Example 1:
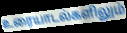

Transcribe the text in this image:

உரையாடல்களிலும்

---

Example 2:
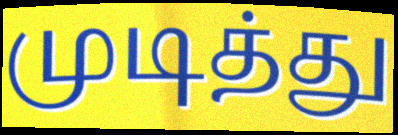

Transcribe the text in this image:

முடித்து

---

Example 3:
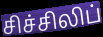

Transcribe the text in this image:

சிச்சிலிப்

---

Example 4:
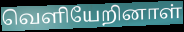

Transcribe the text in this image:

வெளியேறினாள்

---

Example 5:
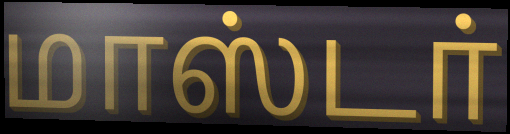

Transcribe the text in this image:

மாஸ்டர்